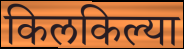
किलकिल्या